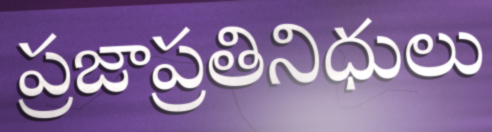
ప్రజాప్రతినిధులు